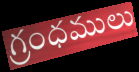
గ్రంధములు